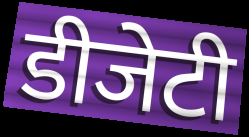
डीजेटी